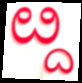
ೞ್ದ